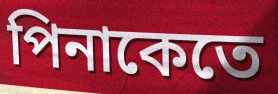
পিনাকেতে